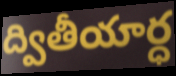
ద్వితీయార్ధ